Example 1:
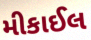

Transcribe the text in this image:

મીકાઈલ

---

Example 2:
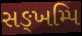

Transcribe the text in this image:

સઙ્ખમ્પિ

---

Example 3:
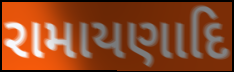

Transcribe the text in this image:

રામાયણાદિ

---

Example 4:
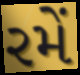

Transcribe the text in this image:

રમેં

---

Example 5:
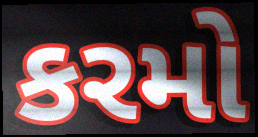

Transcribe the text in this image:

કરમો